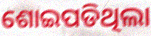
ଶୋଇପଡିଥିଲା